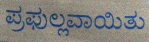
ಪ್ರಫುಲ್ಲವಾಯಿತು